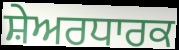
ਸ਼ੇਅਰਧਾਰਕ